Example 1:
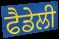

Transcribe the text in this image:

ਫੈਡੇਲੀ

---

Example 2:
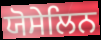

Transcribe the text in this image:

ਯੋਸੇਲਿਨ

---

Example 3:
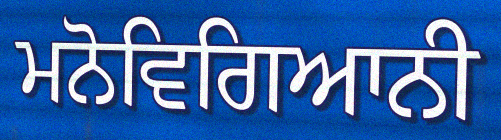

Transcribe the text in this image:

ਮਨੋਵਿਗਿਆਨੀ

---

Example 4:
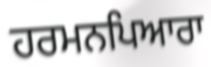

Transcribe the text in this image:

ਹਰਮਨਪਿਆਰਾ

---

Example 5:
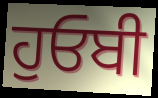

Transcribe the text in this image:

ਹੁਓਬੀ